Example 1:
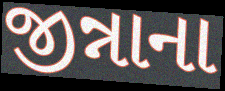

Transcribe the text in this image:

જીન્નાના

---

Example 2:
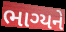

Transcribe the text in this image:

ભાગ્યને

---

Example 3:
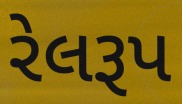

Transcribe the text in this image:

રેલરૂપ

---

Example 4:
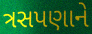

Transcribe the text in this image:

ત્રસપણાને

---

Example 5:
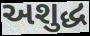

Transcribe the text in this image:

અશુદ્ધ